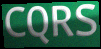
CQRS